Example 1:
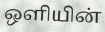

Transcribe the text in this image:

ஒளியின்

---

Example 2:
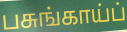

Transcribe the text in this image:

பசுங்காய்ப்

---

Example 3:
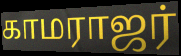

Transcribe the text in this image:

காமராஜர்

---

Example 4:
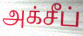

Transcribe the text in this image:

அக்சீப்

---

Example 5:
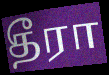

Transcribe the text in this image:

தீரா